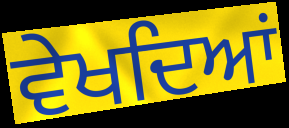
ਵੇਖਦਿਆਂ